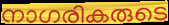
നാഗരികരുടെ